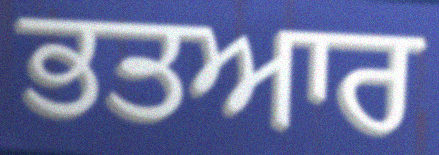
ਭਤਆਰ